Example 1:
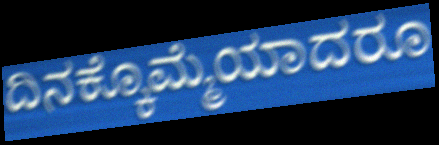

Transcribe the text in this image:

ದಿನಕ್ಕೊಮ್ಮೆಯಾದರೂ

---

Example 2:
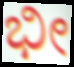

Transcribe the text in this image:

ಭೀ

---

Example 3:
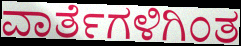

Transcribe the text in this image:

ವಾರ್ತೆಗಳಿಗಿಂತ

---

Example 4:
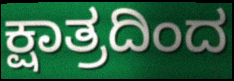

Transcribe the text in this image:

ಕ್ಷಾತ್ರದಿಂದ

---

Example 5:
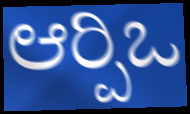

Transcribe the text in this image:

ಆರ್‍ಪಿಒ